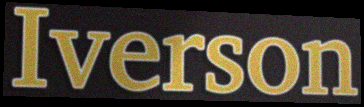
Iverson